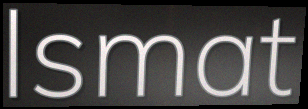
Ismat